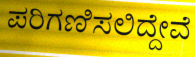
ಪರಿಗಣಿಸಲಿದ್ದೇವೆ